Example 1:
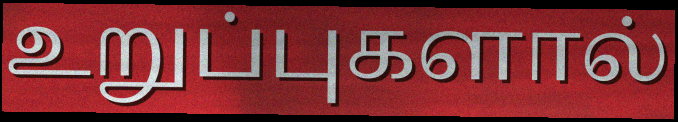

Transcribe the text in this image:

உறுப்புகளால்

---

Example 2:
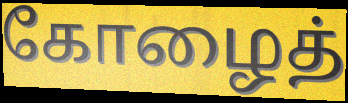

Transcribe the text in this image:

கோழைத்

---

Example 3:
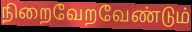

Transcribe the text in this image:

நிறைவேறவேண்டும்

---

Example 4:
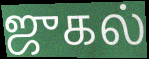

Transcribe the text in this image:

ஜுகல்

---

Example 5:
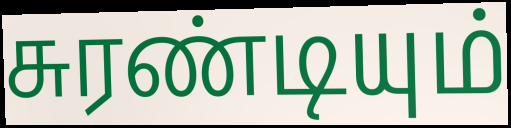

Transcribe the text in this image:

சுரண்டியும்